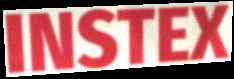
INSTEX